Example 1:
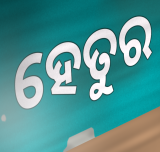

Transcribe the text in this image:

ହେତୁର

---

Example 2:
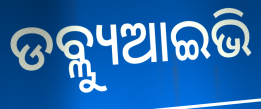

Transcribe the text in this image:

ଡବ୍ଲ୍ୟୁଆଇଭି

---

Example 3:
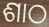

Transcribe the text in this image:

ଶାଠ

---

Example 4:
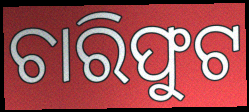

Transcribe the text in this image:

ଚାରିଫୁଟ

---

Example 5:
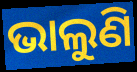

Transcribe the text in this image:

ଭାଲୁଣି